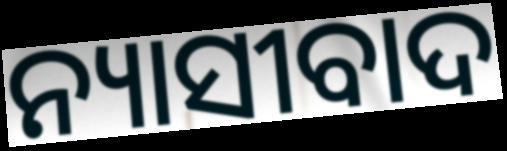
ନ୍ୟାସୀବାଦ